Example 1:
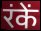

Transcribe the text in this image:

रंकें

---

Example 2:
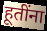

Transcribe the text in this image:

हूतींना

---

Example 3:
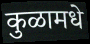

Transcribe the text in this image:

कुळामधे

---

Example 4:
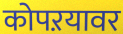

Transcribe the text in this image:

कोपऱयावर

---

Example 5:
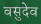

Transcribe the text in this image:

वसुदेव